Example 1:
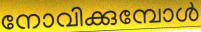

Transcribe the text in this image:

നോവിക്കുമ്പോൾ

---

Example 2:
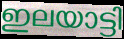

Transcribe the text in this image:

ഇലയാട്ടി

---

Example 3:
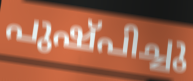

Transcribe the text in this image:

പുഷ്പിച്ചു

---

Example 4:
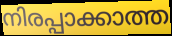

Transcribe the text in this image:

നിരപ്പാക്കാത്ത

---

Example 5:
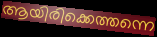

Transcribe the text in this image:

ആയിരിക്കെത്തന്നെ